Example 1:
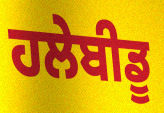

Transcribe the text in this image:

ਹਲੇਬੀਡੂ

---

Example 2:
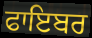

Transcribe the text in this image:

ਫਾਇਬਰ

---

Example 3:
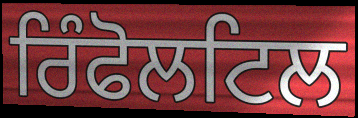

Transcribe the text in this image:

ਰਿੰਫੋਲਟਿਲ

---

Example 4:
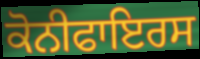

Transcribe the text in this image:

ਕੋਨੀਫਾਇਰਸ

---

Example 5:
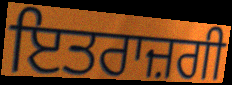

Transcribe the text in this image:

ਇਤਰਾਜ਼ਗੀ